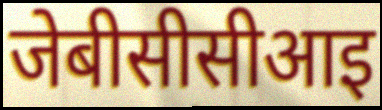
जेबीसीसीआइ